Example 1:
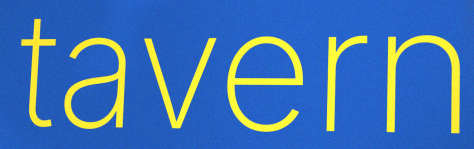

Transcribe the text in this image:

tavern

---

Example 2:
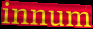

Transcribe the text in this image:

innum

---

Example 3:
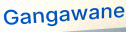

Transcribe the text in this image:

Gangawane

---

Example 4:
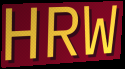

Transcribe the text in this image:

HRW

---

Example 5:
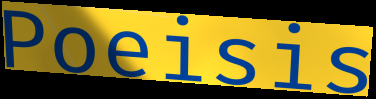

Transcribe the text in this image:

Poeisis